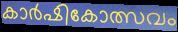
കാർഷികോത്സവം